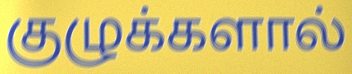
குழுக்களால்